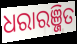
ଧରାରଞ୍ଜିତ